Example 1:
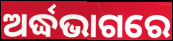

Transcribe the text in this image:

ଅର୍ଦ୍ଧଭାଗରେ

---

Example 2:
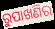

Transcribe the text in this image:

ରୁପାଖଣିର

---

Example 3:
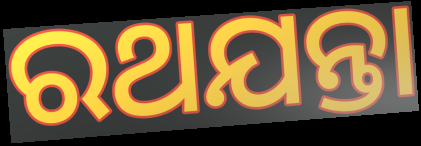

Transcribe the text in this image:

ରଥଯନ୍ତା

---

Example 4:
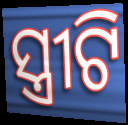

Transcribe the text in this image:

ସ୍ତ୍ରୀଟି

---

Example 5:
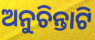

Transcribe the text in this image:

ଅନୁଚିନ୍ତାଟି